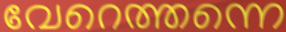
വേറെത്തന്നെ